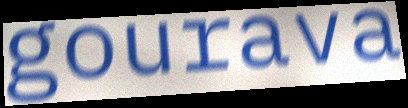
gourava